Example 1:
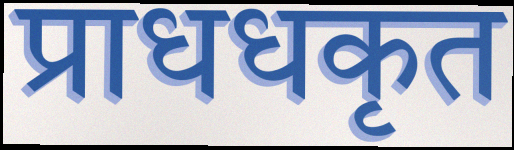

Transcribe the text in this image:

प्राधधकृत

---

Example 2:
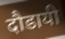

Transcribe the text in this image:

दौडायी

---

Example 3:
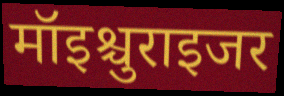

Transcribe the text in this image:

मॉइश्चुराइजर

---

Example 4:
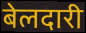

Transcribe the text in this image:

बेलदारी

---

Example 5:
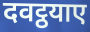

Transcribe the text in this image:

दवट्ठयाए